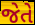
જેતે